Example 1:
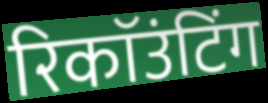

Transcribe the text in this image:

रिकॉउंटिंग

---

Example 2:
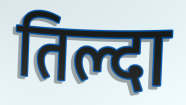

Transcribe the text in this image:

तिल्दा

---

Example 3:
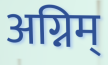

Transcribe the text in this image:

अग्निम्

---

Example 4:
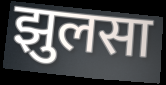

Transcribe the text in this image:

झुलसा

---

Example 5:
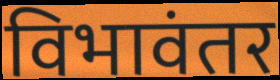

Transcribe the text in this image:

विभावंतर